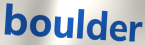
boulder